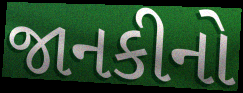
જાનકીનો